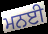
ਮਨਈ